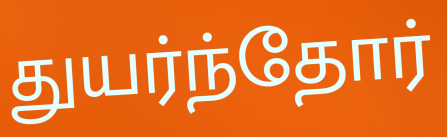
துயர்ந்தோர்